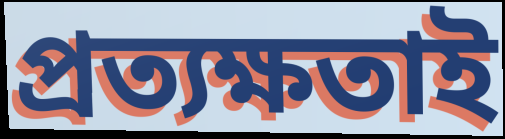
প্রত্যক্ষতাই